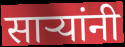
साऱ्यांनी